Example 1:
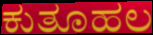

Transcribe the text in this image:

ಕುತೂಹಲ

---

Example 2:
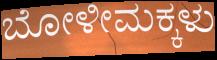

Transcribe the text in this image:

ಬೋಳೀಮಕ್ಕಳು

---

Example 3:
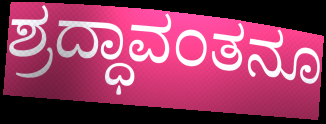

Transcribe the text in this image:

ಶ್ರದ್ಧಾವಂತನೂ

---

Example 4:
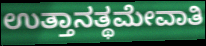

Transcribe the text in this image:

ಉತ್ತಾನತ್ಥಮೇವಾತಿ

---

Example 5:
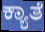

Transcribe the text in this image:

ಕ್ಯಾತೆ